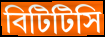
বিটিটিসি